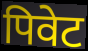
पिवेट